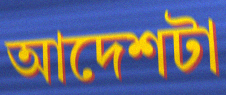
আদেশটা